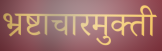
भ्रष्टाचारमुक्ती